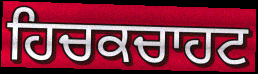
ਹਿਚਕਚਾਹਟ